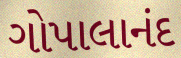
ગોપાલાનંદ